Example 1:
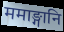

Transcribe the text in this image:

ममाङ्गानि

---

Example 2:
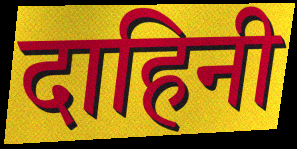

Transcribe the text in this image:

दाहिनी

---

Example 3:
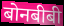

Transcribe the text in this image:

बोनबीबी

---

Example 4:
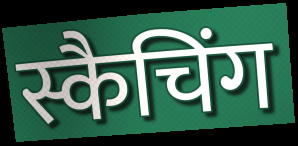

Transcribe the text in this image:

स्कैचिंग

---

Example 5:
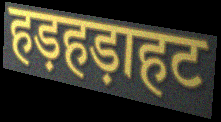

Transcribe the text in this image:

हड़हड़ाहट